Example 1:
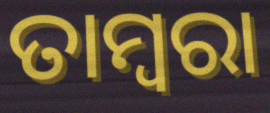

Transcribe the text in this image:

ତାମ୍ବରା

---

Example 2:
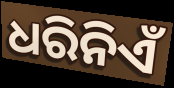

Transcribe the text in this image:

ଧରିନିଏଁ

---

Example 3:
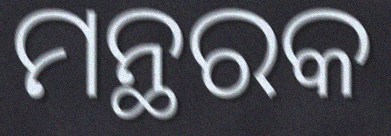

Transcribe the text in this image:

ମନ୍ଥରକ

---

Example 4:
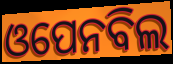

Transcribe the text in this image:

ଓପେନବିଲ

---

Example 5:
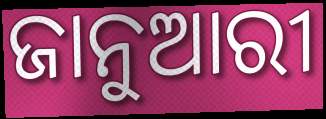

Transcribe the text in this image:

ଜାନୁଆରୀ